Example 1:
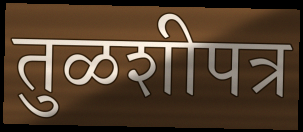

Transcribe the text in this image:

तुळशीपत्र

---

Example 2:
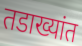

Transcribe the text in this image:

तडाख्यांत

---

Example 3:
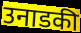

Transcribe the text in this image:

उनाडकी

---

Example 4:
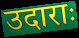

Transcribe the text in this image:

उदाराः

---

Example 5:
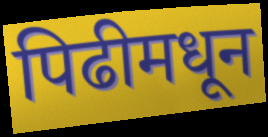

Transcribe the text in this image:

पिढीमधून